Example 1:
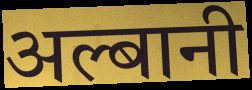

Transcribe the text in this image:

अल्बानी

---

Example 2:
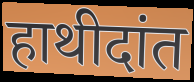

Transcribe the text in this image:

हाथीदांत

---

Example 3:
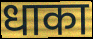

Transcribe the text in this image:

धाका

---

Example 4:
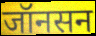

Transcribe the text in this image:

जॉनसन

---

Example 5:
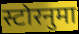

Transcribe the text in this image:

स्टोरनुमा